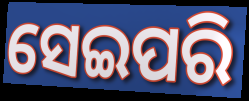
ସେଇପରି